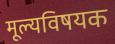
मूल्यविषयक